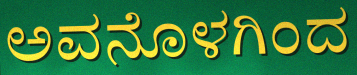
ಅವನೊಳಗಿಂದ